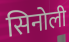
सिनोली